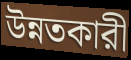
উন্নতকারী